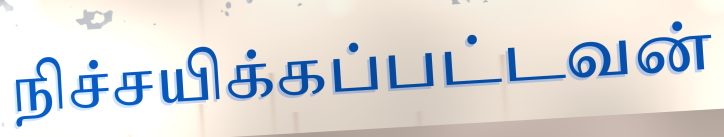
நிச்சயிக்கப்பட்டவன்